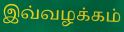
இவ்வழக்கம்